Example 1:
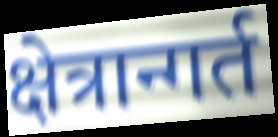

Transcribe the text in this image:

क्षेत्रान्गर्त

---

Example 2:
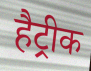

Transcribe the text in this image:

हैट्रीक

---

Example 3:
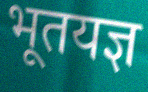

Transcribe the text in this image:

भूतयज्ञ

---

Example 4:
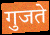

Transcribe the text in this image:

गुजते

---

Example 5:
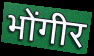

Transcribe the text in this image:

भोंगीर